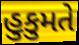
હુકુમતે